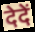
देदें